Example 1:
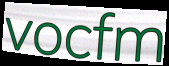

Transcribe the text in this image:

vocfm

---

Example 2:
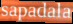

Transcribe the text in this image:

sapadala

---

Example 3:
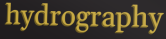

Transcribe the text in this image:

hydrography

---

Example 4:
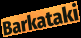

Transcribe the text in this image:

Barkataki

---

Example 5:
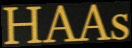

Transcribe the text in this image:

HAAs